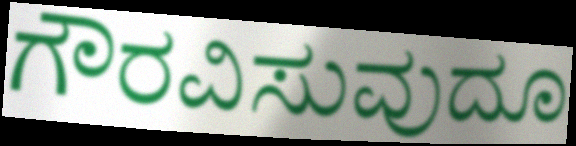
ಗೌರವಿಸುವುದೂ